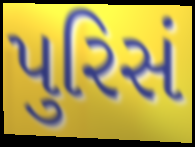
પુરિસં